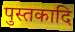
पुस्तकादि